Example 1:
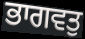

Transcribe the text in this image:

ਭਾਗਵਤੁ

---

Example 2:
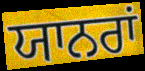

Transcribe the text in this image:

ਯਾਨਰਾਂ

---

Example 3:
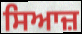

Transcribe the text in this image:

ਸਿਆਜ਼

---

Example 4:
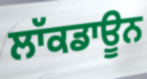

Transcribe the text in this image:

ਲਾੱਕਡਾਊਨ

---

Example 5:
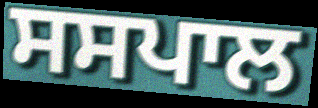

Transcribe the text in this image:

ਸਸਪਾਲ